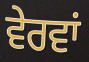
ਵੇਰਵਾਂ